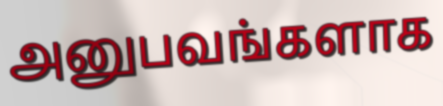
அனுபவங்களாக